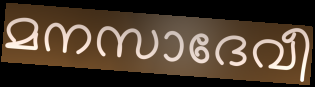
മനസാദേവീ